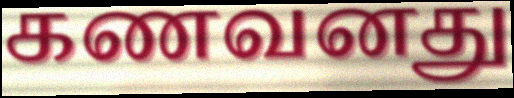
கணவனது